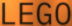
LEGO